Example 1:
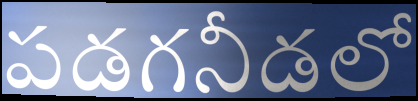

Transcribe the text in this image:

పడగనీడలో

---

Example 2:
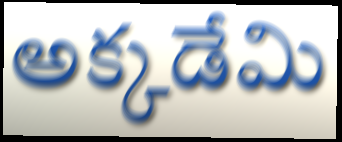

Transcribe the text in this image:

అక్కడేమి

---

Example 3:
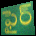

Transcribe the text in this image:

ఫైర్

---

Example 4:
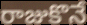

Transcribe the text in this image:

రాజుకొనే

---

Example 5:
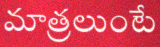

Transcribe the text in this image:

మాత్రలుంటే